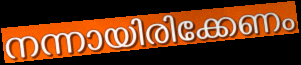
നന്നായിരിക്കേണം